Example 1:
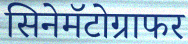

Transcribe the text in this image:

सिनेमॅटोग्राफर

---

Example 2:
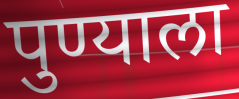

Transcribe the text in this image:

पुण्याला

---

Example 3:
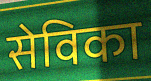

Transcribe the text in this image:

सेविका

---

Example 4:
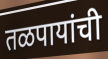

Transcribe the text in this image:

तळपायांची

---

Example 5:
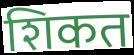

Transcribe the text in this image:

शिकत